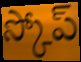
స్కోప్